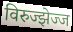
विरुज्झेज्ज